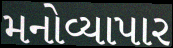
મનોવ્યાપાર